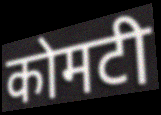
कोमटी